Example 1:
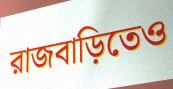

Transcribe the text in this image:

রাজবাড়িতেও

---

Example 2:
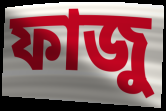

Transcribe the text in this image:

ফাজু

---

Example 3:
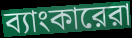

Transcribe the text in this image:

ব্যাংকারেরা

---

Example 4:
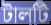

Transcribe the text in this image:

টালটি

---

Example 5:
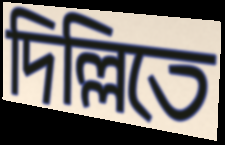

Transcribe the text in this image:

দিল্লিতে